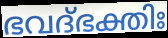
ഭവദ്ഭക്തിഃ